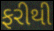
ફરીથી